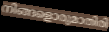
നിങ്ങളൊരുമാതിരി